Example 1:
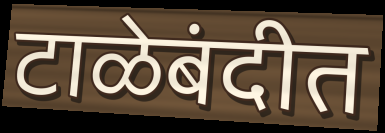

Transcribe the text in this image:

टाळेबंदीत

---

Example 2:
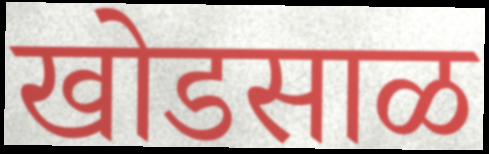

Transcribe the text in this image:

खोडसाळ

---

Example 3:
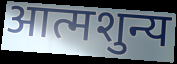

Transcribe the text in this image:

आत्मशुन्य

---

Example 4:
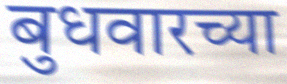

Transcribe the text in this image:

बुधवारच्या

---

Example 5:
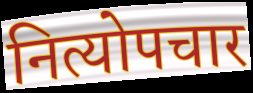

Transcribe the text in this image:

नित्योपचार